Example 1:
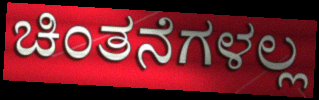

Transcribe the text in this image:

ಚಿಂತನೆಗಳಲ್ಲ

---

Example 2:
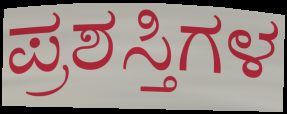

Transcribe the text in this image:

ಪ್ರಶಸ್ತಿಗಳ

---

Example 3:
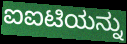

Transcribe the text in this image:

ಐಐಟಿಯನ್ನು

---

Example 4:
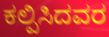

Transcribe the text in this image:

ಕಲ್ಪಿಸಿದವರ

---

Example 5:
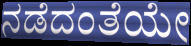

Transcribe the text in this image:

ನಡೆದಂತೆಯೇ